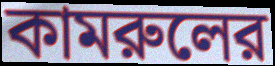
কামরুলের